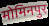
मोमिनपुर